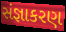
સંજ્ઞાકરણ